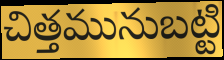
చిత్తమునుబట్టి